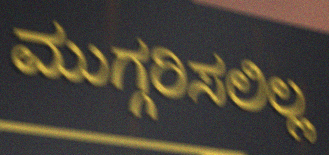
ಮುಗ್ಗರಿಸಲಿಲ್ಲ